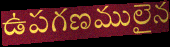
ఉపగణములైన